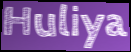
Huliya